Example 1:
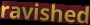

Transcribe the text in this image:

ravished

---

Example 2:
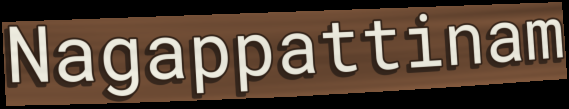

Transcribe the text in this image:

Nagappattinam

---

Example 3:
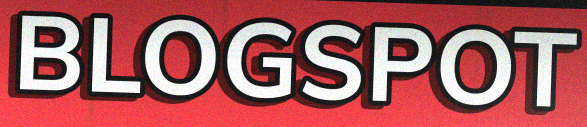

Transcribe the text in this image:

BLOGSPOT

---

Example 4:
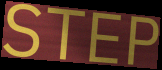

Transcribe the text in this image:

STEP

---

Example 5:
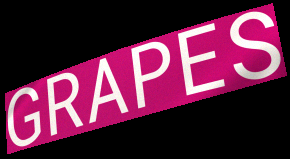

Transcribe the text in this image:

GRAPES